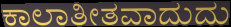
ಕಾಲಾತೀತವಾದುದು